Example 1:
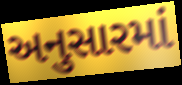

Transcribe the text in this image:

અનુસારમાં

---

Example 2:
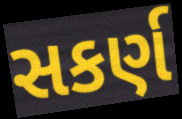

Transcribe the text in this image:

સકર્ણ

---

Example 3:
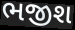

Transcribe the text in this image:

ભજીશ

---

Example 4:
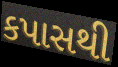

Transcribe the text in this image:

કપાસથી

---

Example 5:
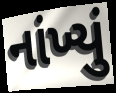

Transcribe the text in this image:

નાંખ્યું